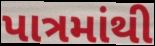
પાત્રમાંથી